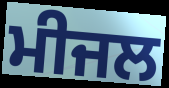
ਮੀਜਲ